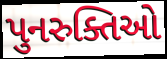
પુનરુક્તિઓ